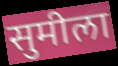
सुमीला